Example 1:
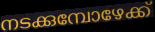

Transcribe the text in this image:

നടക്കുമ്പോഴേക്ക്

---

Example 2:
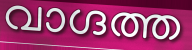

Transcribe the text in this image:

വാഗ്ദത്ത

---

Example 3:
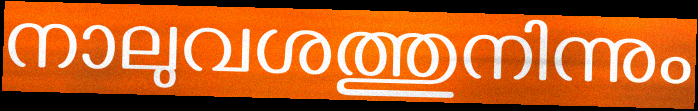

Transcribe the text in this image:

നാലുവശത്തുനിന്നും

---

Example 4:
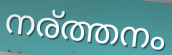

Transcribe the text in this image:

നര്ത്തനം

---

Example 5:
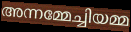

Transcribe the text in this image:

അന്നമ്മേച്ചിയമ്മ